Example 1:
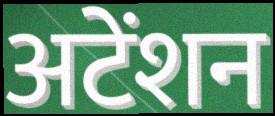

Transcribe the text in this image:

अटेंशन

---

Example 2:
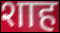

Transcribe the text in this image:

शाह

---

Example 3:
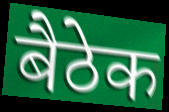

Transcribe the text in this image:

बैठेक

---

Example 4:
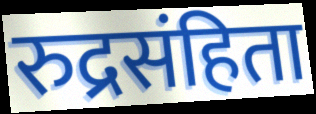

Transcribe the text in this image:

रुद्रसंहिता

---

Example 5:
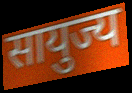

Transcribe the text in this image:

सायुज्य